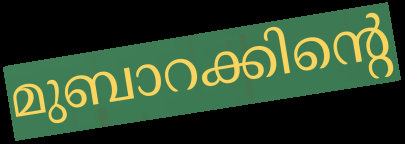
മുബാറക്കിന്റെ